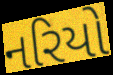
નરિયો